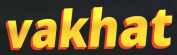
vakhat